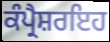
ਕੰਪ੍ਰੈਸ਼ਰਇਹ